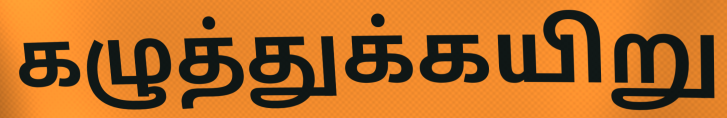
கழுத்துக்கயிறு